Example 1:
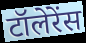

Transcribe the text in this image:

टॉलेरेंस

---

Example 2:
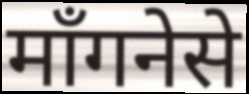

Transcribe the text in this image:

माँगनेसे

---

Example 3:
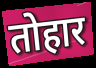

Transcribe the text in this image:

तोहार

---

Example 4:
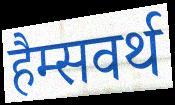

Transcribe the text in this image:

हैम्सवर्थ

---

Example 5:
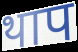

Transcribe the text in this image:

थाप